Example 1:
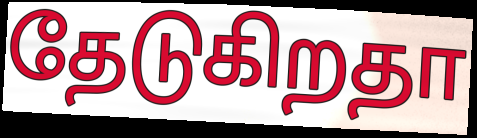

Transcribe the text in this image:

தேடுகிறதா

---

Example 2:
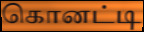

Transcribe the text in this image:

கொனட்டி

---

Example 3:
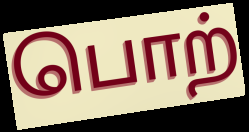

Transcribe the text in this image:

பொற்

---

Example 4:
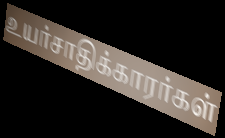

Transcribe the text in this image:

உயர்சாதிக்காரர்கள்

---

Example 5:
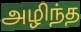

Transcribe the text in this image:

அழிந்த